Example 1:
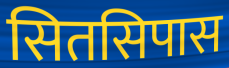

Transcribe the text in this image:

सितसिपास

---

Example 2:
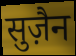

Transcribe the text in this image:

सुज़ैन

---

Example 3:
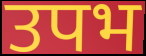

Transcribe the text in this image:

उपभ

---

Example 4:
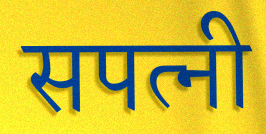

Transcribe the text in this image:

सपत्नी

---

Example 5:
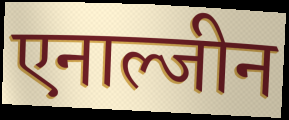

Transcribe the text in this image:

एनाल्जीन